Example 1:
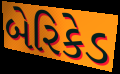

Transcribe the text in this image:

બેરિકેડ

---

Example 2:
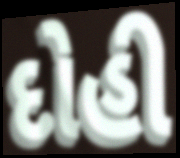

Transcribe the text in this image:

દોહી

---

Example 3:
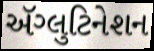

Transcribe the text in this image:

ઍગ્લુટિનેશન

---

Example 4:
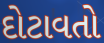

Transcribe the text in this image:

દોટાવતો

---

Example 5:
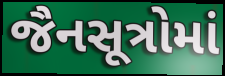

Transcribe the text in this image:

જૈનસૂત્રોમાં